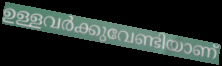
ഉള്ളവർക്കുവേണ്ടിയാണ്